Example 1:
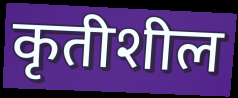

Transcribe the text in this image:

कृतीशील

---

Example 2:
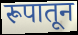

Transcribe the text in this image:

रूपातून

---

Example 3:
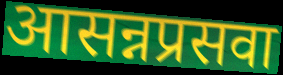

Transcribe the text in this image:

आसन्नप्रसवा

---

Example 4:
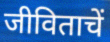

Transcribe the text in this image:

जीविताचें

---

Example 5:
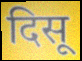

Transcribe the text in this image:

दिसू